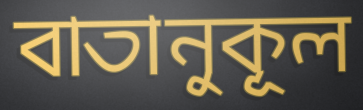
বাতানুকূল